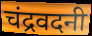
चंद्रवदनी